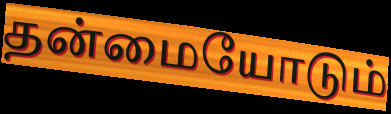
தன்மையோடும்